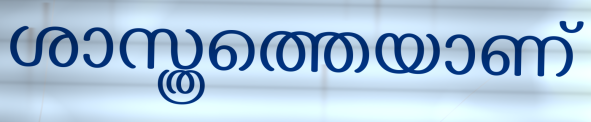
ശാസ്ത്രത്തെയാണ്